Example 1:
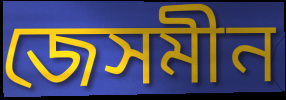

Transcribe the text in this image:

জেসমীন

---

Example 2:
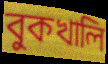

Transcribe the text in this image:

বুকখালি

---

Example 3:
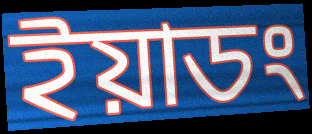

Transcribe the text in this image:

ইয়াডং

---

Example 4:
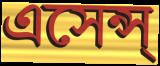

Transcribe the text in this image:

এসেন্স্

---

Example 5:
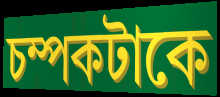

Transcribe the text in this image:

চম্পকটাকে